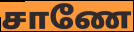
சாணே